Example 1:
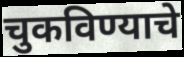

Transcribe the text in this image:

चुकविण्याचे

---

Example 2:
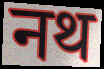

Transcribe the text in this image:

नथ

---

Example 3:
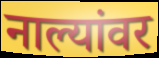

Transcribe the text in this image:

नाल्यांवर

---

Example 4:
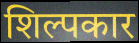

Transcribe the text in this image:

शिल्पकार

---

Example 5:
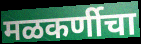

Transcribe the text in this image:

मळकर्णीचा